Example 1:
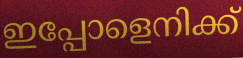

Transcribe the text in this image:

ഇപ്പോളെനിക്ക്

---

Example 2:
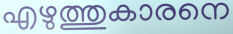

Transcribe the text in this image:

എഴുത്തുകാരനെ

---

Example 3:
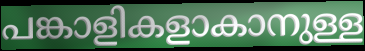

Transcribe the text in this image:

പങ്കാളികളാകാനുള്ള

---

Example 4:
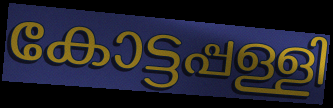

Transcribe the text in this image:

കോട്ടപ്പള്ളി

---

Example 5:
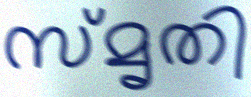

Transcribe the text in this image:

സ്മൃതി